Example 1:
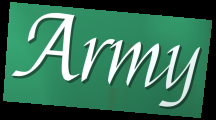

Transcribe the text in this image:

Army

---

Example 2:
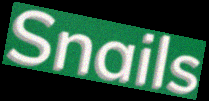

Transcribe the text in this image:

Snails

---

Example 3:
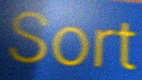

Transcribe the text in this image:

Sort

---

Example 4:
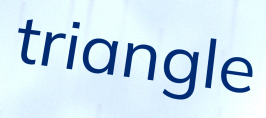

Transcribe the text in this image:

triangle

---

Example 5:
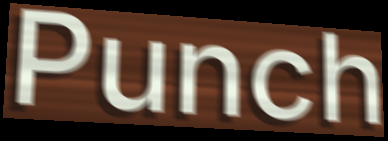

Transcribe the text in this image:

Punch